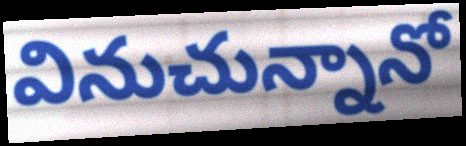
వినుచున్నానో